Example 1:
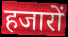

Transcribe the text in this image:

हजारों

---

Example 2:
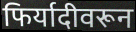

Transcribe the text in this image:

फिर्यादीवरून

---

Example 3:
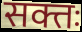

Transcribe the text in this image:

सक्तः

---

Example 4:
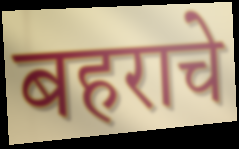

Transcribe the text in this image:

बहराचे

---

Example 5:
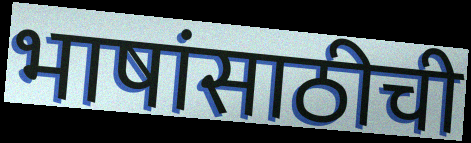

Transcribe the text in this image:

भाषांसाठीची